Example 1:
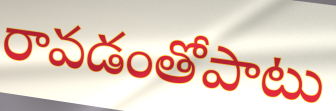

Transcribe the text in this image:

రావడంతోపాటు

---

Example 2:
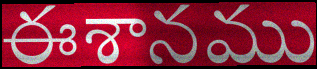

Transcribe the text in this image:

ఈశానము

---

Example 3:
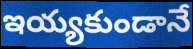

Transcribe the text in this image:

ఇయ్యకుండానే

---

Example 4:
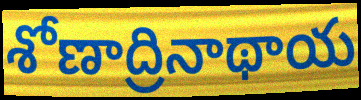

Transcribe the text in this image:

శోణాద్రినాథాయ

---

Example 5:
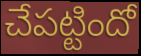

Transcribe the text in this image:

చేపట్టిందో